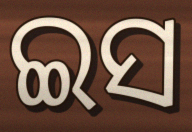
ଇସ